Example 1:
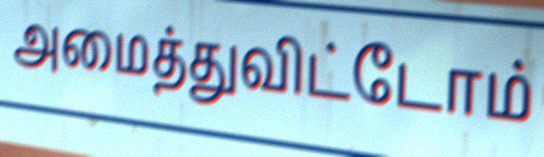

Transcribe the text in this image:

அமைத்துவிட்டோம்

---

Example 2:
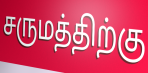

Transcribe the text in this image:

சருமத்திற்கு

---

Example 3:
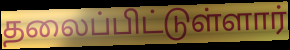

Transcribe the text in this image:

தலைப்பிட்டுள்ளார்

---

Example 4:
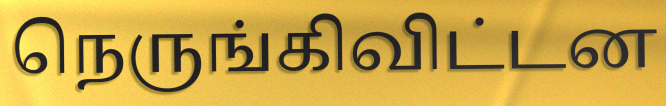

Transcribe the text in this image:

நெருங்கிவிட்டன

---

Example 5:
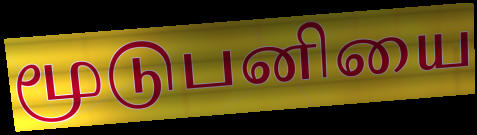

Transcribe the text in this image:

மூடுபனியை